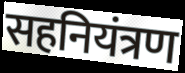
सहनियंत्रण